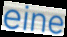
eine